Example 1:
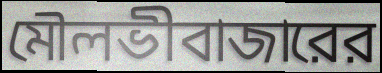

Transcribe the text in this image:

মৌলভীবাজারের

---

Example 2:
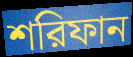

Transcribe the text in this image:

শরিফান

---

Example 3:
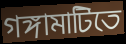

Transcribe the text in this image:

গঙ্গামাটিতে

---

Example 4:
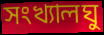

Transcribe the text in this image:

সংখ্যালঘু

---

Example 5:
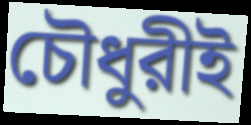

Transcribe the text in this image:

চৌধুরীই